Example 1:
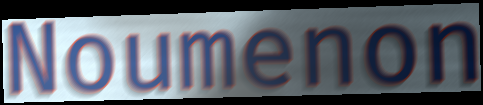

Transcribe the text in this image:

Noumenon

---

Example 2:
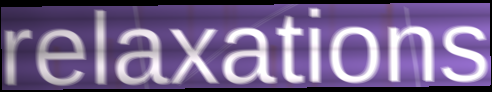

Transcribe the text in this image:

relaxations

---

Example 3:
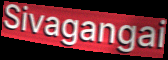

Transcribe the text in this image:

Sivagangai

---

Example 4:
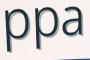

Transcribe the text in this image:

ppa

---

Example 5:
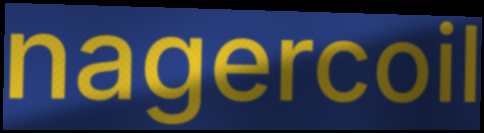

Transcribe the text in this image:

nagercoil